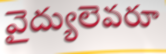
వైద్యులెవరూ